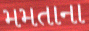
મમતાના